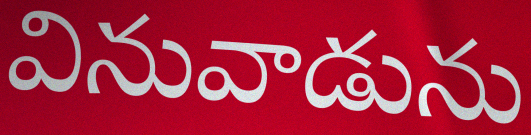
వినువాడును